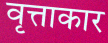
वृत्ताकार